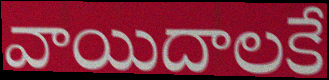
వాయిదాలకే